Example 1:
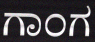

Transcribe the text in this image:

ಗಾಂಗ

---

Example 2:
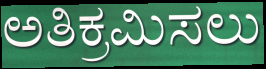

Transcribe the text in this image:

ಅತಿಕ್ರಮಿಸಲು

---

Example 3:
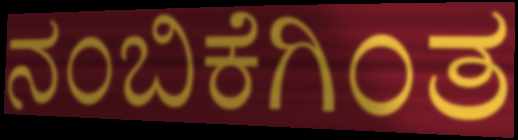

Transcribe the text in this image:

ನಂಬಿಕೆಗಿಂತ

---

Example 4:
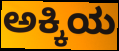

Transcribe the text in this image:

ಅಕ್ಕಿಯ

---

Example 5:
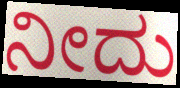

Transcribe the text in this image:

ನೀದು